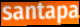
santapa